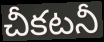
చీకటనీ